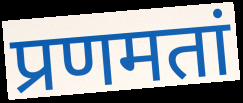
प्रणमतां